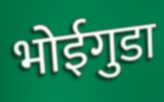
भोईगुडा